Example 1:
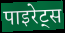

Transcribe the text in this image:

पाइरेट्स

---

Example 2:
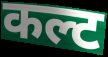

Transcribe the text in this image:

कल्ट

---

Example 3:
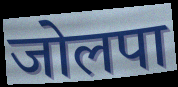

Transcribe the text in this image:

जोलपा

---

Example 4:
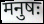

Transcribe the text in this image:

मनुषः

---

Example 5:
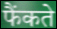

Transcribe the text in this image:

फैंकते